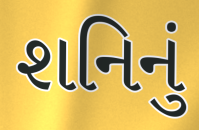
શનિનું